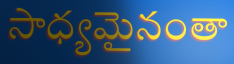
సాధ్యమైనంతా